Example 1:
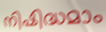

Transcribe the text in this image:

നിഷിദ്ധമാം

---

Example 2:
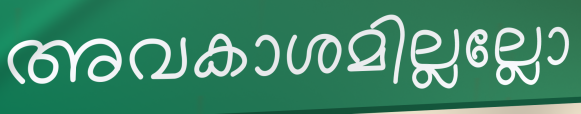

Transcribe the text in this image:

അവകാശമില്ലല്ലോ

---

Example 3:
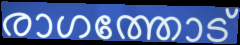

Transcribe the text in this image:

രാഗത്തോട്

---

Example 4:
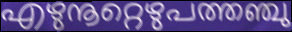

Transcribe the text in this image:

എഴുനൂറ്റെഴുപത്തഞ്ചു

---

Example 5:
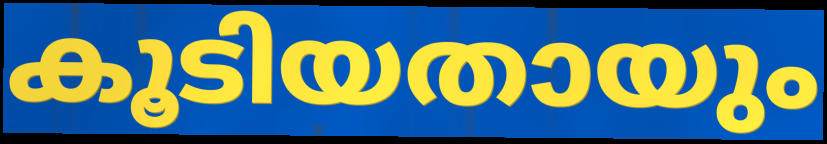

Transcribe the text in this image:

കൂടിയതായും